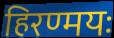
हिरण्मयः